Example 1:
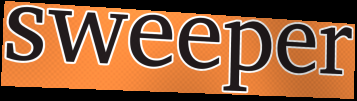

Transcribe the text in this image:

sweeper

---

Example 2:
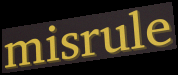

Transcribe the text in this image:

misrule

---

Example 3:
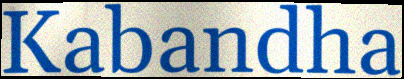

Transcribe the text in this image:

Kabandha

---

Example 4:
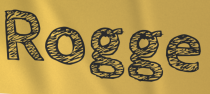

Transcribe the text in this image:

Rogge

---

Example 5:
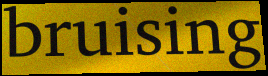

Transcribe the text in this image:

bruising